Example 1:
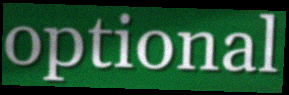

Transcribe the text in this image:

optional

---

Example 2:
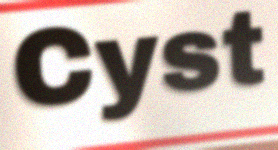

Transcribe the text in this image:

Cyst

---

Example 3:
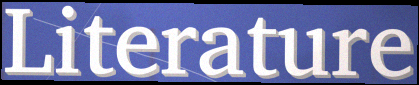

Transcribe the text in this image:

Literature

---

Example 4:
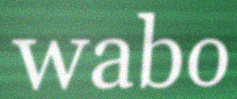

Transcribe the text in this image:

wabo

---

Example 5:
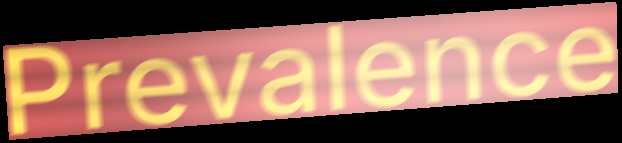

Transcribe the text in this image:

Prevalence